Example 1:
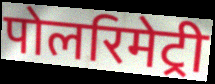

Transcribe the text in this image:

पोलरिमेट्री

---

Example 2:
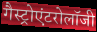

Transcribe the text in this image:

गैस्ट्रोएंटरोलॉजी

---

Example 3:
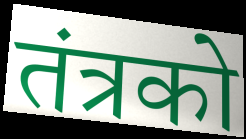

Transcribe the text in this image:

तंत्रको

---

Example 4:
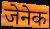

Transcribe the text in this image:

जेनेक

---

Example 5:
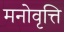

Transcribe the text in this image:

मनोवृत्ति